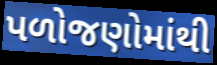
પળોજણોમાંથી